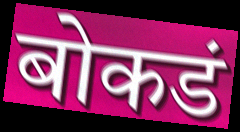
बोकडं